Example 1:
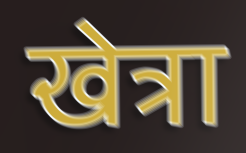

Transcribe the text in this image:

खेत्रा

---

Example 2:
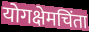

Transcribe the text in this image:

योगक्षेमचिंता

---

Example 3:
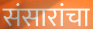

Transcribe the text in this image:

संसारांचा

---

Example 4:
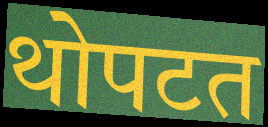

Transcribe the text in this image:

थोपटत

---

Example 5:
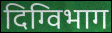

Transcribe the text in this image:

दिग्विभाग